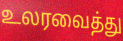
உலரவைத்து